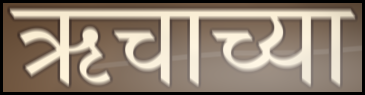
ऋचाच्या